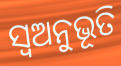
ସ୍ୱଅନୁଭୂତି